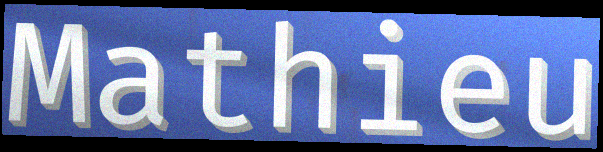
Mathieu